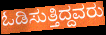
ಓಡಿಸುತ್ತಿದ್ದವರು